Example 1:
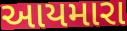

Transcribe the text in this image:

આયમારા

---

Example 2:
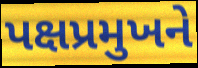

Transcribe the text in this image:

પક્ષપ્રમુખને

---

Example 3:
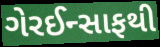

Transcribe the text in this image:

ગેરઈન્સાફથી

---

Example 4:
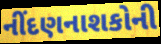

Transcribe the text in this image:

નીંદણનાશકોની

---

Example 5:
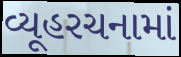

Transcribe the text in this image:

વ્યૂહરચનામાં